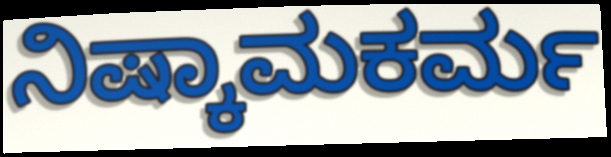
ನಿಷ್ಕಾಮಕರ್ಮ